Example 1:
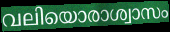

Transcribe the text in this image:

വലിയൊരാശ്വാസം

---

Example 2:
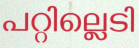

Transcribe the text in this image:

പറ്റില്ലെടി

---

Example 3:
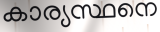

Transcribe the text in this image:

കാര്യസ്ഥനെ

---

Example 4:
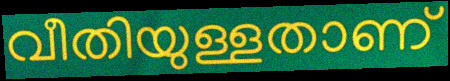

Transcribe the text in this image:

വീതിയുള്ളതാണ്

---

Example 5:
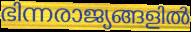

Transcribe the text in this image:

ഭിന്നരാജ്യങ്ങളിൽ